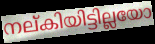
നല്കിയിട്ടില്ലയോ